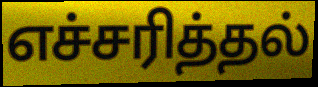
எச்சரித்தல்